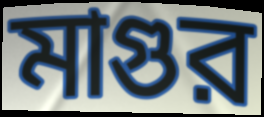
মাগুর